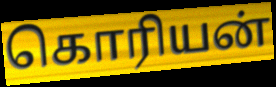
கொரியன்